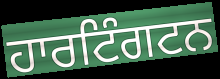
ਹਾਰਟਿੰਗਟਨ